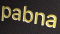
pabna